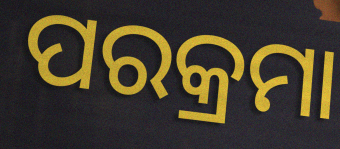
ପରକ୍ରମା